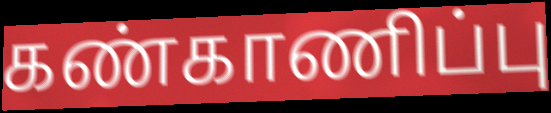
கண்காணிப்பு